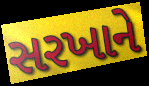
સરખાને